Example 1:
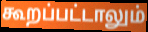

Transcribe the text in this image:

கூறப்பட்டாலும்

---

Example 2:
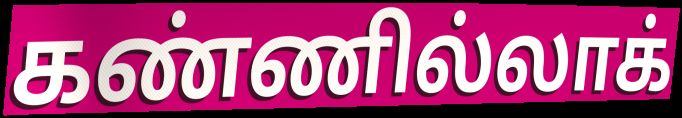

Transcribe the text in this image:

கண்ணில்லாக்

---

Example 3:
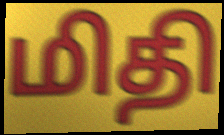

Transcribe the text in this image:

மிதி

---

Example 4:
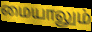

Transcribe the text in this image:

மையாலும்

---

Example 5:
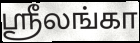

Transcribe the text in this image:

ஶ்ரீலங்கா